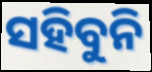
ସହିବୁନି